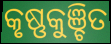
କୃଷ୍ଣକୁଞ୍ଚିତ